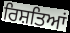
ਰਿਸ਼ਤਿਆਂ